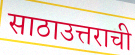
साठाउत्तराची